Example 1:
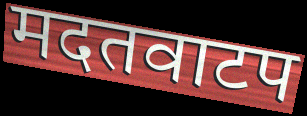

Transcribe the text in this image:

मदतवाटप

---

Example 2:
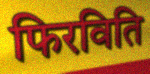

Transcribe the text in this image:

फिरविति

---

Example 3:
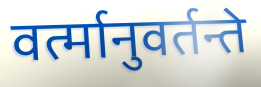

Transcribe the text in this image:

वर्त्मानुवर्तन्ते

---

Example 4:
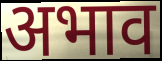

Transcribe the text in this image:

अभाव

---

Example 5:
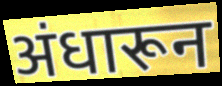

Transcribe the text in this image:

अंधारून